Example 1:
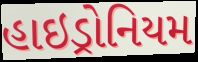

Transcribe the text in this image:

હાઇડ્રોનિયમ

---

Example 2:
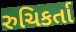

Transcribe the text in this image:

રુચિકર્તા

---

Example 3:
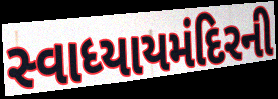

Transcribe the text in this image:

સ્વાધ્યાયમંદિરની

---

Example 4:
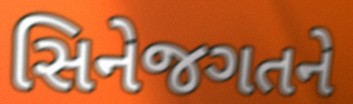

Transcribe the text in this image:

સિનેજગતને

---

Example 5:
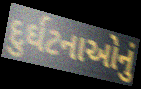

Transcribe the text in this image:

દુર્ઘટનાઓનું